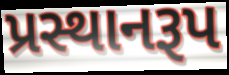
પ્રસ્થાનરૂપ